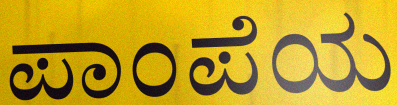
ಪಾಂಪೆಯ